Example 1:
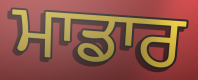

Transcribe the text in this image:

ਮਾਡਾਰ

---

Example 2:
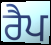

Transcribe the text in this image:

ਰੈਪ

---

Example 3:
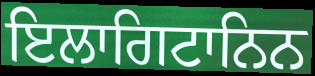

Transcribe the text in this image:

ਇਲਾਗਿਟਾਨਿਨ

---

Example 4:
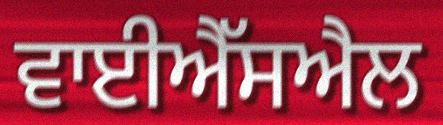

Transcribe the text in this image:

ਵਾਈਐੱਸਐਲ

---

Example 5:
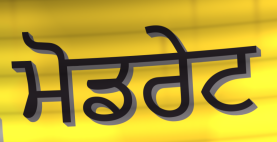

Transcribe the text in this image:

ਮੋਡਰੇਟ